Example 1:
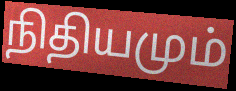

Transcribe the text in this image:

நிதியமும்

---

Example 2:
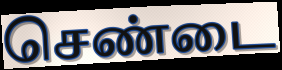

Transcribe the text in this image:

செண்டை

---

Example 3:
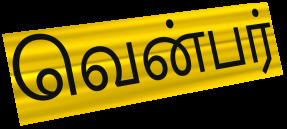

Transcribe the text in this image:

வென்பர்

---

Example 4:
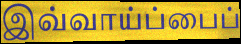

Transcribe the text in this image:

இவ்வாய்ப்பைப்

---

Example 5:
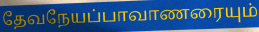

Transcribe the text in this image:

தேவநேயப்பாவாணரையும்